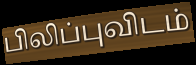
பிலிப்புவிடம்